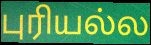
புரியல்ல